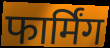
फार्मिंग